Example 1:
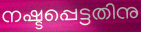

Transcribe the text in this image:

നഷ്ടപ്പെട്ടതിനു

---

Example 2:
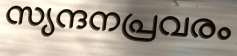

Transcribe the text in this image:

സ്യന്ദനപ്രവരം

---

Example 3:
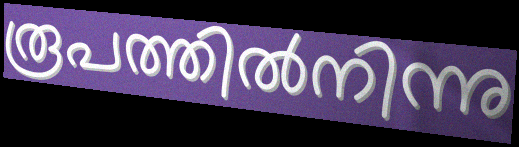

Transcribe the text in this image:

രൂപത്തിൽനിന്നു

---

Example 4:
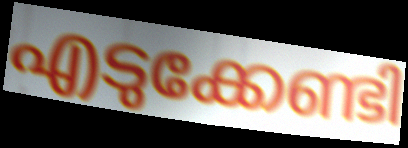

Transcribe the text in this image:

എടുക്കേണ്ടി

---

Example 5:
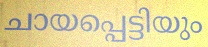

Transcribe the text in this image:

ചായപ്പെട്ടിയും